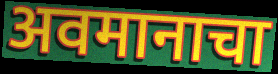
अवमानाचा